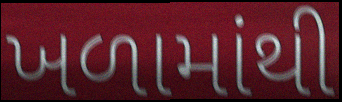
ખળામાંથી